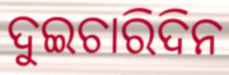
ଦୁଇଚାରିଦିନ